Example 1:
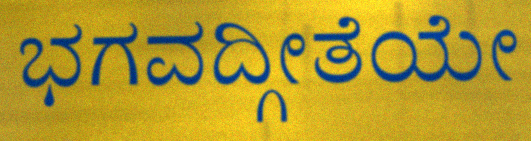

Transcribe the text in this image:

ಭಗವದ್ಗೀತೆಯೇ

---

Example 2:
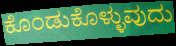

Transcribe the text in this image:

ಕೊಂಡುಕೊಳ್ಳುವುದು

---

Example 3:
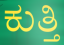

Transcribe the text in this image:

ಕುತ್ತಿ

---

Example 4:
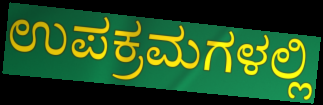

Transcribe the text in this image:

ಉಪಕ್ರಮಗಳಲ್ಲಿ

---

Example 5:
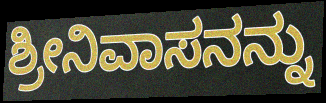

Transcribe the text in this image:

ಶ್ರೀನಿವಾಸನನ್ನು